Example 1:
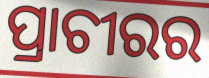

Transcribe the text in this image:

ପ୍ରାଚୀରର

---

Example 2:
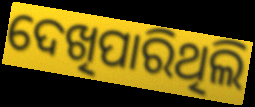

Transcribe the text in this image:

ଦେଖିପାରିଥିଲି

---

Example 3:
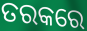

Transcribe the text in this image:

ତରକରେ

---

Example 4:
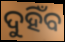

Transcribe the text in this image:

ଦୁହିଁବ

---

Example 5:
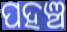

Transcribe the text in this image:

ପହଞ୍ଚ